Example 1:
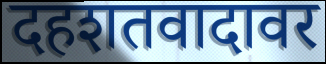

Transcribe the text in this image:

दहशतवादावर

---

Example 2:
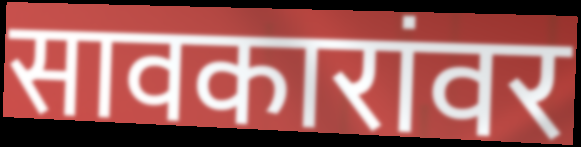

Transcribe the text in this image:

सावकारांवर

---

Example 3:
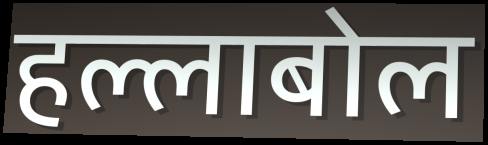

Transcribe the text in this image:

हल्लाबोल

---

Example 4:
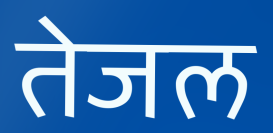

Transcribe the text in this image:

तेजल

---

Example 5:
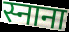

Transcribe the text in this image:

स्नाना